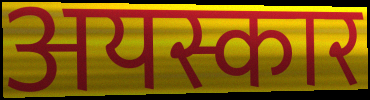
अयस्कार